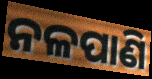
ନଳପାଣି